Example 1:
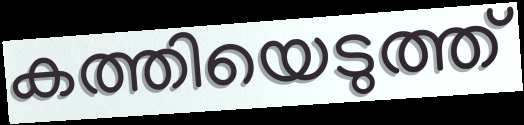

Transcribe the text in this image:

കത്തിയെടുത്ത്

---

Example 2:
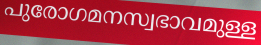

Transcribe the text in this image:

പുരോഗമനസ്വഭാവമുള്ള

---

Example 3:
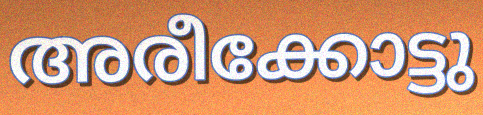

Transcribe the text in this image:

അരീക്കോട്ടു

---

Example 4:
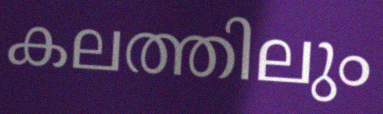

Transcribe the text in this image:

കലത്തിലും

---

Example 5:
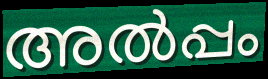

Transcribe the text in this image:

അൽപ്പം